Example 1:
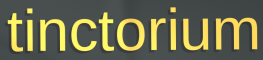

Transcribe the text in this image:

tinctorium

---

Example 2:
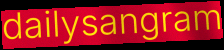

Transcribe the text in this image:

dailysangram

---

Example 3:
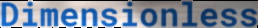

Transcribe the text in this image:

Dimensionless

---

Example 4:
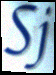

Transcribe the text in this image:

Sj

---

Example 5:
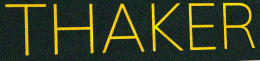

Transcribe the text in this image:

THAKER